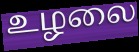
உழலை